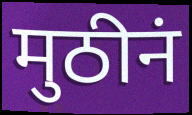
मुठीनं